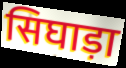
सिघाड़ा